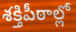
శక్తిపీఠాల్లో